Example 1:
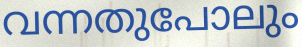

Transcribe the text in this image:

വന്നതുപോലും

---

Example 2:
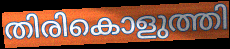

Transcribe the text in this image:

തിരികൊളുത്തി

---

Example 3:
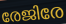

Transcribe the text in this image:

രേജിരേ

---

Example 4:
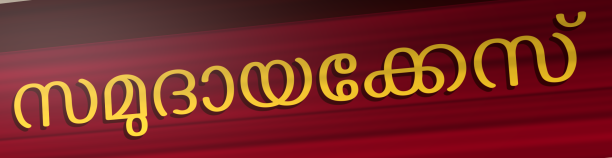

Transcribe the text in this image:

സമുദായക്കേസ്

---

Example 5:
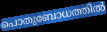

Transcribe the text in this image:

പൊതുബോധത്തിൽ